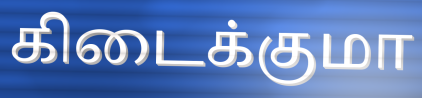
கிடைக்குமா